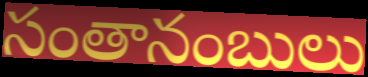
సంతానంబులు